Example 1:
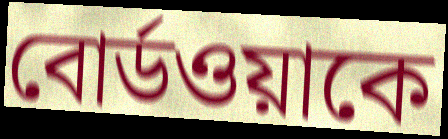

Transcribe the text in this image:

বোর্ডওয়াকে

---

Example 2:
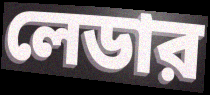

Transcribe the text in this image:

লেডার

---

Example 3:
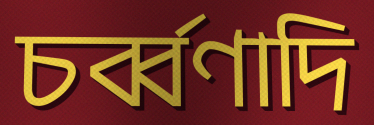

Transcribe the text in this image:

চর্ব্বণাদি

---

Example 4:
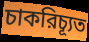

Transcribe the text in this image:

চাকরিচ্যূত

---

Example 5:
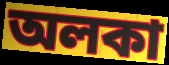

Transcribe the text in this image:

অলকা